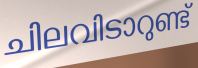
ചിലവിടാറുണ്ട്